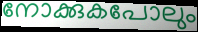
നോക്കുകപോലും